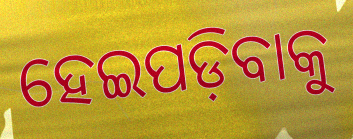
ହେଇପଡ଼ିବାକୁ